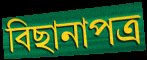
বিছানাপত্র